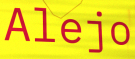
Alejo